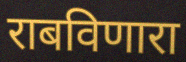
राबविणारा